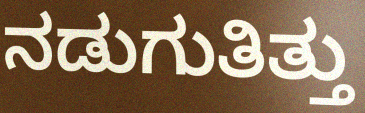
ನಡುಗುತಿತ್ತು